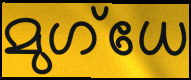
മുഗ്ധേ